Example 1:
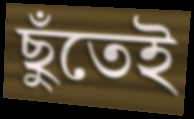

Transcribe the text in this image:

ছুঁতেই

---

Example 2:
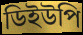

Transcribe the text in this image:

ডিইউপি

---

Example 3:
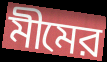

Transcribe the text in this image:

মীমের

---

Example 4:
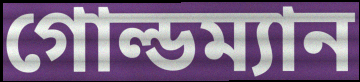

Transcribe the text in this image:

গোল্ডম্যান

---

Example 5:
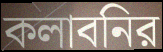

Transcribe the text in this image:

কলাবনির